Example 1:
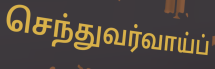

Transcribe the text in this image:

செந்துவர்வாய்ப்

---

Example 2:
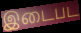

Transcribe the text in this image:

இடைபட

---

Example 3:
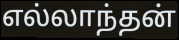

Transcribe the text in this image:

எல்லாந்தன்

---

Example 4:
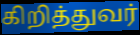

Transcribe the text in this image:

கிறித்துவர்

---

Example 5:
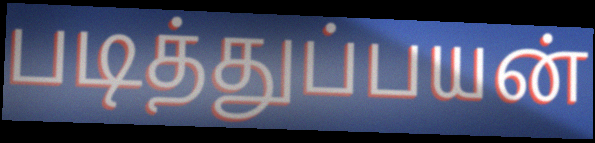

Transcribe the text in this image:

படித்துப்பயன்